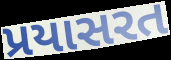
પ્રયાસરત